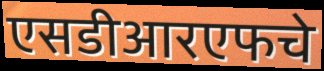
एसडीआरएफचे